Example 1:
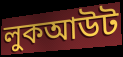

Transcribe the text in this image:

লুকআউট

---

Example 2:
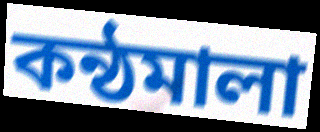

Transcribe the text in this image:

কন্ঠমালা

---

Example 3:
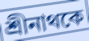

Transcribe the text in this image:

শ্রীনাথকে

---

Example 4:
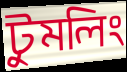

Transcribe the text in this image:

টুমলিং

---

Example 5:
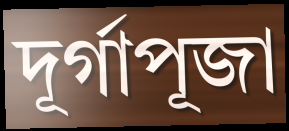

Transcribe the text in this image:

দূর্গাপূজা